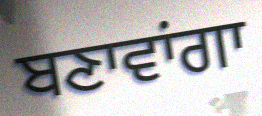
ਬਣਾਵਾਂਗਾ